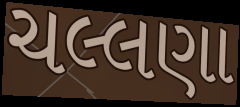
ચલ્લણા